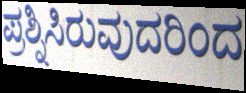
ಪ್ರಶ್ನಿಸಿರುವುದರಿಂದ